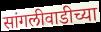
सांगलीवाडीच्या